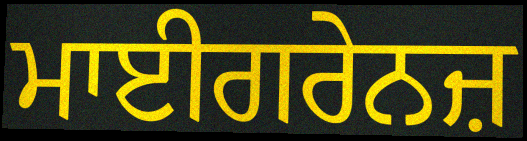
ਮਾਈਗਰੇਨਜ਼